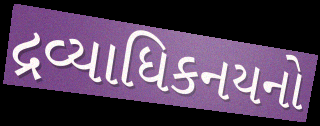
દ્રવ્યાધિકનયનો